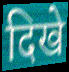
दिखे